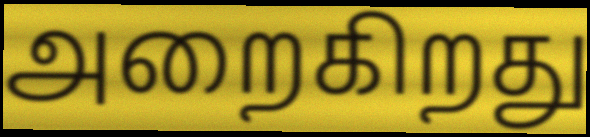
அறைகிறது